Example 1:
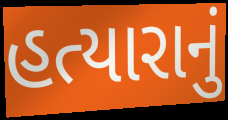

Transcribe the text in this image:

હત્યારાનું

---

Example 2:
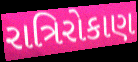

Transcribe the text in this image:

રાત્રિરોકાણ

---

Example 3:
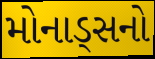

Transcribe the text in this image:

મોનાડ્સનો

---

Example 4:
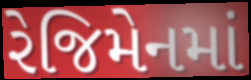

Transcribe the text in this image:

રેજિમેનમાં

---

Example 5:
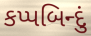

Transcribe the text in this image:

કપ્પબિન્દું